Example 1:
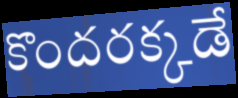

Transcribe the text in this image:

కొందరక్కడే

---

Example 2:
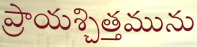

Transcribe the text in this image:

ప్రాయశ్చిత్తమును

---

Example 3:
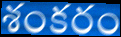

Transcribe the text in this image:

శంకరం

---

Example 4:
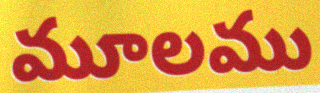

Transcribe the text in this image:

మూలము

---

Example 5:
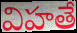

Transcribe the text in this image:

విహతే